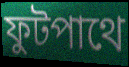
ফুটপাথে